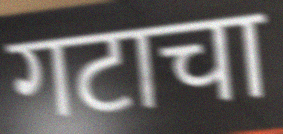
गटाचा